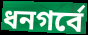
ধনগর্বে